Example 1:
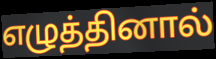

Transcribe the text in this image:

எழுத்தினால்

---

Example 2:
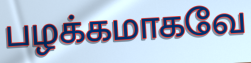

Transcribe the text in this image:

பழக்கமாகவே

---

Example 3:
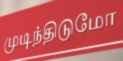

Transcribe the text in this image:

முடிந்திடுமோ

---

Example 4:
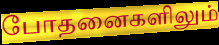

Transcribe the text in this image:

போதனைகளிலும்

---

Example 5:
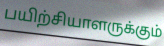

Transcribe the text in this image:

பயிற்சியாளருக்கும்